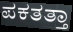
ಪಕತತ್ತಾ